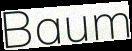
Baum